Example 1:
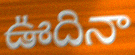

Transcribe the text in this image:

ఊదినా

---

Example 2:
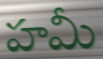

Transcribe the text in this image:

హమీ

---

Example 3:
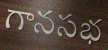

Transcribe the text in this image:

గానసభ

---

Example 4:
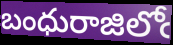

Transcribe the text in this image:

బంధురాజిలోఁ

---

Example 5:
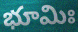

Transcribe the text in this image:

భూమిః